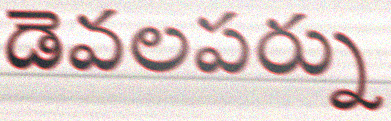
డెవలపర్ను